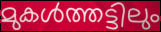
മുകൾത്തട്ടിലും